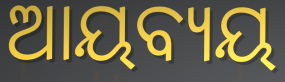
ଆୟବ୍ୟୟ